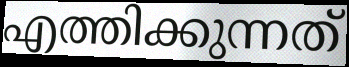
എത്തിക്കുന്നത്